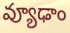
వ్యూఢాం